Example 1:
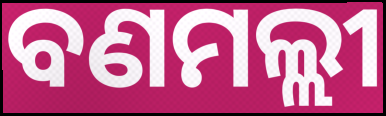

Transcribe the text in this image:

ବଣମଲ୍ଲୀ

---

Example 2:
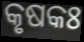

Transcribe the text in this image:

କୃଷକଃ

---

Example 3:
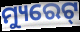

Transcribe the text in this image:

ମ୍ୟୁରେଟ୍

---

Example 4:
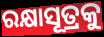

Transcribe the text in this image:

ରକ୍ଷାସୂତ୍ରକୁ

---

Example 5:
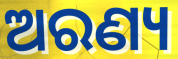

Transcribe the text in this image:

ଅରଣ୍ୟ